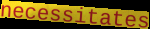
necessitates